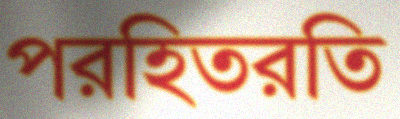
পরহিতরতি